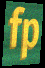
fp